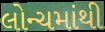
લોન્ચમાંથી